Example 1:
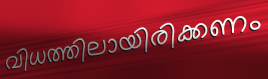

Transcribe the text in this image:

വിധത്തിലായിരിക്കണം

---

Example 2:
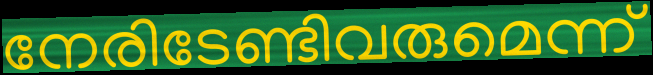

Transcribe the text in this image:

നേരിടേണ്ടിവരുമെന്ന്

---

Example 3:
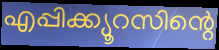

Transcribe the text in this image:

എപ്പിക്ക്യൂറസിന്റെ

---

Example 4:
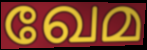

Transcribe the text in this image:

ഖേമ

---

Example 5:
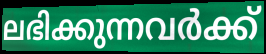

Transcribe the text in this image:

ലഭിക്കുന്നവർക്ക്